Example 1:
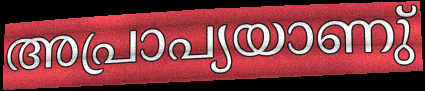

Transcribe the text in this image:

അപ്രാപ്യയാണു്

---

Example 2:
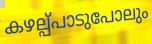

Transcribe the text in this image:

കഴല്പ്പാടുപോലും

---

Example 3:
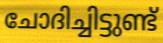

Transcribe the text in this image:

ചോദിച്ചിട്ടുണ്ട്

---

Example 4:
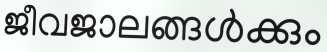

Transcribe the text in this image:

ജീവജാലങ്ങൾക്കും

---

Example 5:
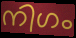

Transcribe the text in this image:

നിഗം